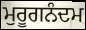
ਮੁਰੂਗਨੰਦਮ